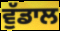
ਵੁੱਡਾਲ